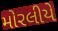
મોરલીયે